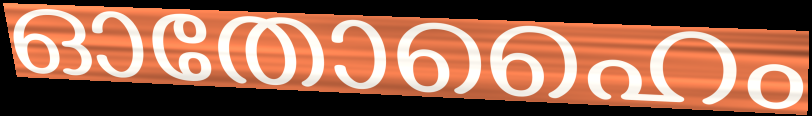
ഓതോഹൈം